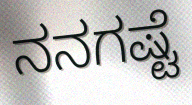
ನನಗಷ್ಟೆ